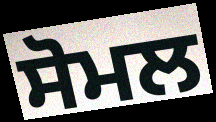
ਸੋਮਲ